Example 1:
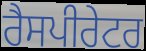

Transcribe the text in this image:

ਰੈਸਪੀਰੇਟਰ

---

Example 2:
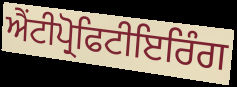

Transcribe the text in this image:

ਐਂਟੀਪ੍ਰੋਫਿਟੀਇਰਿੰਗ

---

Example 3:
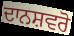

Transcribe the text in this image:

ਦਾਨਸ਼ਵਰੋ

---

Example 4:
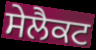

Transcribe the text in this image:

ਸੇਲੈਕਟ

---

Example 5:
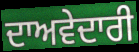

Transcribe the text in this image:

ਦਾਅਵੇਦਾਰੀ